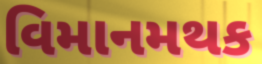
વિમાનમથક